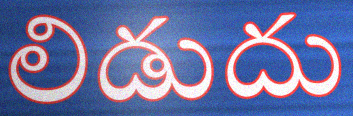
లిడుదు